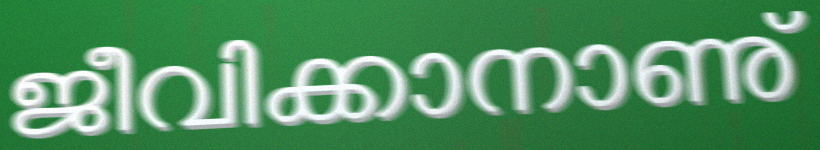
ജീവിക്കാനാണു്